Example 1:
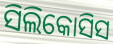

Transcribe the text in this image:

ସିଲିକୋସିସ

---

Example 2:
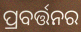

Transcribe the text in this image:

ପ୍ରବର୍ତ୍ତନର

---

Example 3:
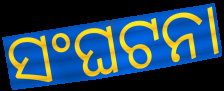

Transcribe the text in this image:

ସଂଘଟନା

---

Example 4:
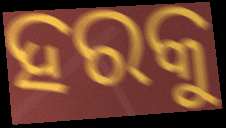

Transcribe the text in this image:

ହରକୁ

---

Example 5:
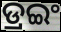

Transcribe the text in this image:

ଡ୍ରଇଂ